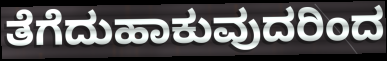
ತೆಗೆದುಹಾಕುವುದರಿಂದ